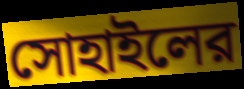
সোহাইলের